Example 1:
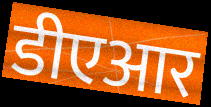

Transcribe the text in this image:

डीएआर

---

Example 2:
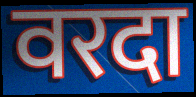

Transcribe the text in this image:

वरदा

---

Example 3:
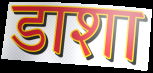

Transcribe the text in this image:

डाशा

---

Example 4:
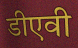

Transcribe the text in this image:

डीएवी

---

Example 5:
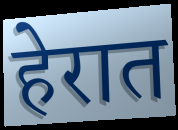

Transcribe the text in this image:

हेरात